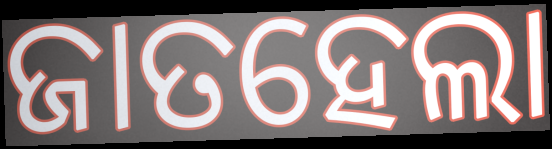
ଜାତହେଲା